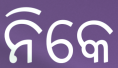
ନିକେ